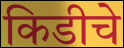
किडीचे